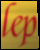
lep